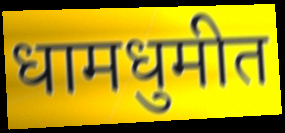
धामधुमीत